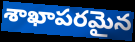
శాఖాపరమైన